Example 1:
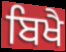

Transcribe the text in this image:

ਬਿਖੈ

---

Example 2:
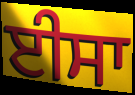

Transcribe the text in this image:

ਈਸਾ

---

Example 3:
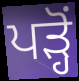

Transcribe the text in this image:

ਪੜ੍ਹੋਂ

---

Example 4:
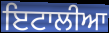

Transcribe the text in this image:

ਇਟਾਲੀਆ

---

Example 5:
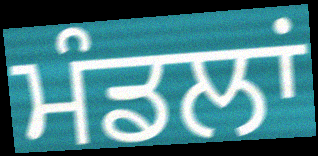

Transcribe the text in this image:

ਮੰਡਲਾਂ